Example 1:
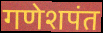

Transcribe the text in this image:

गणेशपंत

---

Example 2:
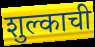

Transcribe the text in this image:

शुल्काची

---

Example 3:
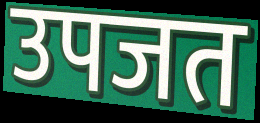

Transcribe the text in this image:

उपजत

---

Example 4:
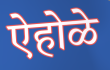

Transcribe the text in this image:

ऐहोळे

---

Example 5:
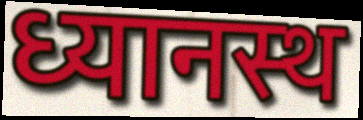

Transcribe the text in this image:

ध्यानस्थ